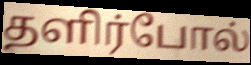
தளிர்போல்